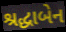
શ્રદ્ધાબેન